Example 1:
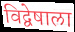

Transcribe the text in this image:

विद्वेषाला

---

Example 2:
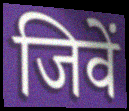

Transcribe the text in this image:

जिवें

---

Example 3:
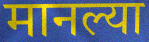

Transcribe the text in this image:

मानल्या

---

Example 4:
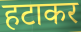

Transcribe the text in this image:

हटाकर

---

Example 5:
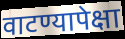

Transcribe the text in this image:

वाटण्यापेक्षा